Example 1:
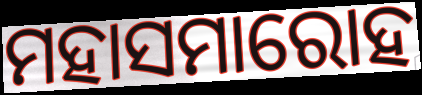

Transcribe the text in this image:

ମହାସମାରୋହ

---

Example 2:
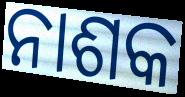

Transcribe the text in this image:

ନାଶକ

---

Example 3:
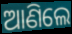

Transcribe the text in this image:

ଆଣିଲେ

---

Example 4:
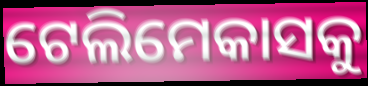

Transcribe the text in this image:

ଟେଲିମେକାସକୁ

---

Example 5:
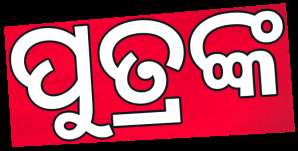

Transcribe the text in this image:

ପୁତ୍ରଙ୍କ